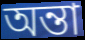
অন্তা